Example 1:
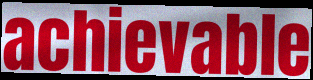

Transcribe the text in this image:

achievable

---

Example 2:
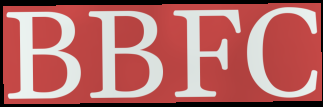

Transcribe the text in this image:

BBFC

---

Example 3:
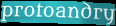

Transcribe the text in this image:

protoandry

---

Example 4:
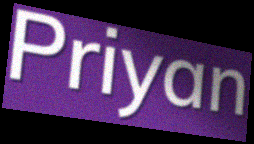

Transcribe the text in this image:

Priyan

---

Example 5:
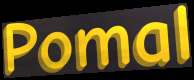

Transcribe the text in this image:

Pomal